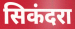
सिकंदरा